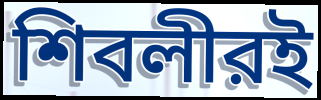
শিবলীরই